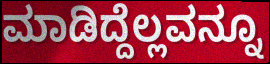
ಮಾಡಿದ್ದೆಲ್ಲವನ್ನೂ